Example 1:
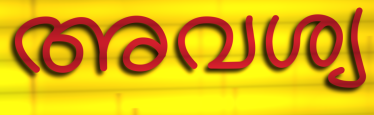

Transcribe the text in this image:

അവശ്യ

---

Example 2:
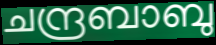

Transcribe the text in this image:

ചന്ദ്രബാബു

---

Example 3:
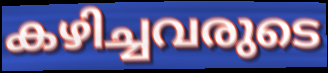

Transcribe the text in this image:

കഴിച്ചവരുടെ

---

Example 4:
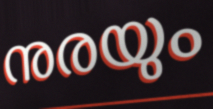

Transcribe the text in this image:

നുരയും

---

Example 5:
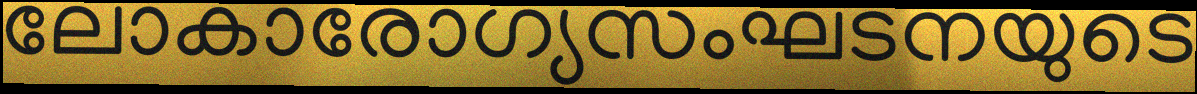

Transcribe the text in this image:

ലോകാരോഗ്യസംഘടനയുടെ